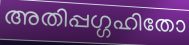
അതിപ്പഗ്ഗഹിതോ